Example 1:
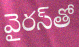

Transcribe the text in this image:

వైరస్‌తో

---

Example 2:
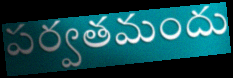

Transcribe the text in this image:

పర్వతమందు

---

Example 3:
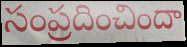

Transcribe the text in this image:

సంప్రదించిందా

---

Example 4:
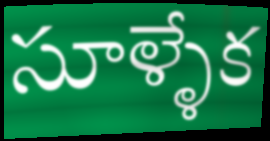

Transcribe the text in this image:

సూళ్ళేక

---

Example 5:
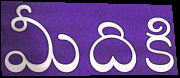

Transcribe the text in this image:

మీదికి